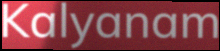
Kalyanam